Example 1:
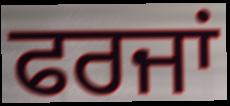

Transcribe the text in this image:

ਫਰਜਾਂ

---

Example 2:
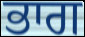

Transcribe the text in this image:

ਭਾਗ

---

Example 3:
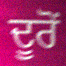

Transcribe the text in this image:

ਦੂਰੋਂ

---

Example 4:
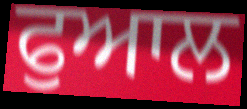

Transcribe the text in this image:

ਫੁਆਲ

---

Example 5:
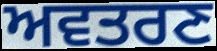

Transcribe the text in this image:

ਅਵਤਰਣ